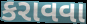
કરાવવા